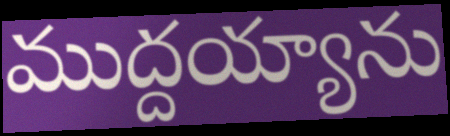
ముద్దయ్యాను